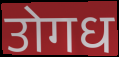
उोगध